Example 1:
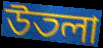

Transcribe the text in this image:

উতলা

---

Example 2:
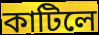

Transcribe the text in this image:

কাটিলে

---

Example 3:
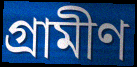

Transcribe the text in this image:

গ্ৰামীণ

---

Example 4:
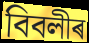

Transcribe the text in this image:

বিবলীৰ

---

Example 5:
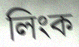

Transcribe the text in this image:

লিংক